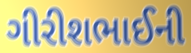
ગીરીશભાઈની